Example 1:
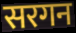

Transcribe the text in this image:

सरगन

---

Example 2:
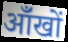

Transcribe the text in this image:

आंँखों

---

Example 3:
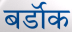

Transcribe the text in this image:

बर्डॉक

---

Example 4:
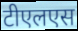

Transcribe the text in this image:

टीएलएस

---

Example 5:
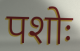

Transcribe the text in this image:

पशोः